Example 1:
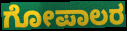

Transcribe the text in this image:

ಗೋಪಾಲರ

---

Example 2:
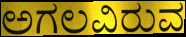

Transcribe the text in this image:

ಅಗಲವಿರುವ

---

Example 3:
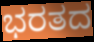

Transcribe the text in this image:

ಭರತದ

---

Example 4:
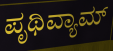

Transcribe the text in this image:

ಪೃಥಿವ್ಯಾಮ್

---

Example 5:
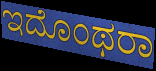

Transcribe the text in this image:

ಇದೊಂಥರಾ